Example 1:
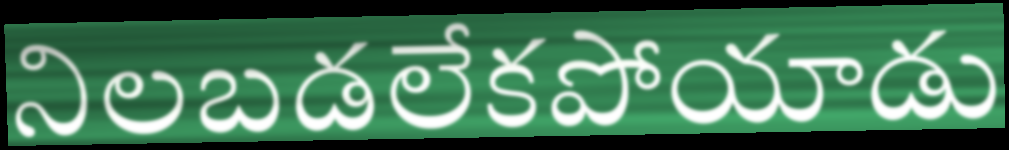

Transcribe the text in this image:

నిలబడలేకపోయాడు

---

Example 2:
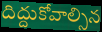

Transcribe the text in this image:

దిద్దుకోవాల్సిన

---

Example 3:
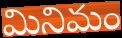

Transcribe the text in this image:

మినిమం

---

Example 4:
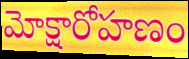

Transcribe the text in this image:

మోక్షారోహణం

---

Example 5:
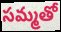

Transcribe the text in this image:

సమ్మతో